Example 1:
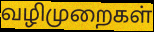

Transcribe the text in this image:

வழிமுறைகள்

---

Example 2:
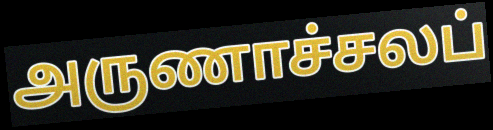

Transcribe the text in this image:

அருணாச்சலப்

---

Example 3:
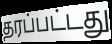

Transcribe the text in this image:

தரப்பட்டது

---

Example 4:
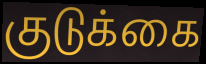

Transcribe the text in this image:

குடுக்கை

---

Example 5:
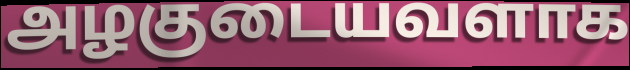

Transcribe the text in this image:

அழகுடையவளாக